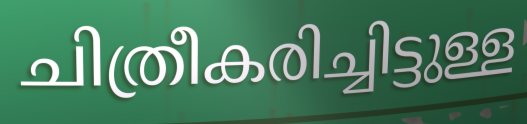
ചിത്രീകരിച്ചിട്ടുള്ള